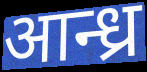
आन्ध्र